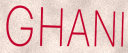
GHANI